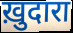
ख़ुदारा